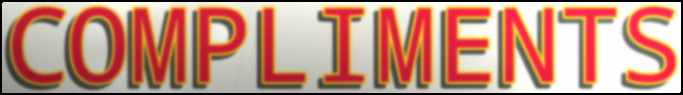
COMPLIMENTS